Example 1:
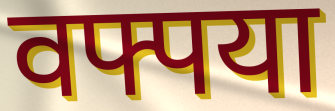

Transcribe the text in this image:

वफ्पया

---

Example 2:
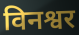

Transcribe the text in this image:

विनश्वर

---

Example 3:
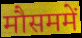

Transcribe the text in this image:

मौसममें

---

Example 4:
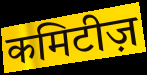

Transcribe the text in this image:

कमिटीज़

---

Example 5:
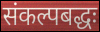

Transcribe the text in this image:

संकल्पबद्धः